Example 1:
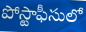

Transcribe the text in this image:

పోస్టాఫీసులో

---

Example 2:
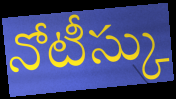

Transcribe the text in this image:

నోటీస్కు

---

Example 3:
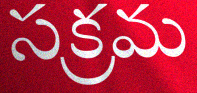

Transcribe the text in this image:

సక్రమ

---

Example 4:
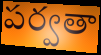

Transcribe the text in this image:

పర్వతా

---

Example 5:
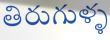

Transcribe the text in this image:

తిరుగుళ్ళ